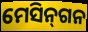
ମେସିନ୍‌ଗନ